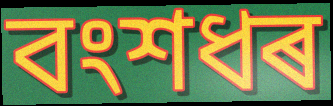
বংশধৰ